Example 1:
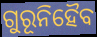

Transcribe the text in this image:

ଗୁରୂନିହୈବ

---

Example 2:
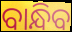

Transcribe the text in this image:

ବାନ୍ଧିବ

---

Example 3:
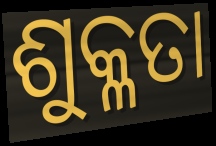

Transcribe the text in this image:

ଶୁକ୍ଳତା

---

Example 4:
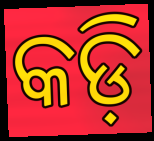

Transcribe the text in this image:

କଡ଼ି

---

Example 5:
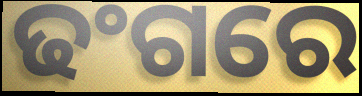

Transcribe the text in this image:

ଢଂଗରେ